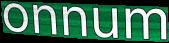
onnum